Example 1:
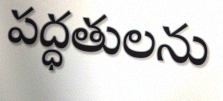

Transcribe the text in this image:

పద్ధతులను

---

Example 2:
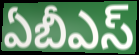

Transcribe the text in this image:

ఏబీఎస్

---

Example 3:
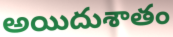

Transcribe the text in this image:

అయిదుశాతం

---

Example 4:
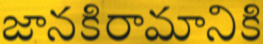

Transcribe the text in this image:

జానకిరామానికి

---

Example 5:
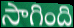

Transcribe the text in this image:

సాగింది